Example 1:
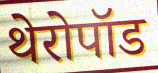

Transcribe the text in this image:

थेरोपॉड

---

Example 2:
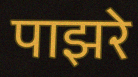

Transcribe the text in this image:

पाझरे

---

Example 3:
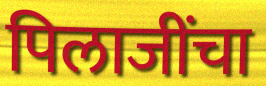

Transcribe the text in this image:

पिलाजींचा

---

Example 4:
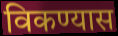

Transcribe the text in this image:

विकण्यास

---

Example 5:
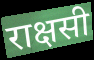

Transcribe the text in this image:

राक्षसी